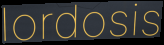
lordosis